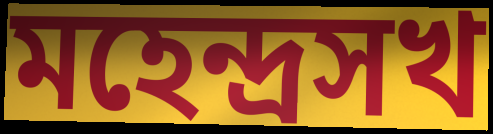
মহেন্দ্রসখ